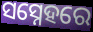
ସସ୍ନେହରେ